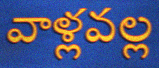
వాళ్లవల్ల